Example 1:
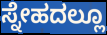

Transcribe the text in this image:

ಸ್ನೇಹದಲ್ಲೂ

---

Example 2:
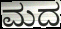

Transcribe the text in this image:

ಮದ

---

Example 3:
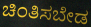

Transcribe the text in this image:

ಚಿಂತಿಸಬೇಡ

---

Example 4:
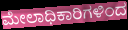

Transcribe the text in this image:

ಮೇಲಾಧಿಕಾರಿಗಳಿಂದ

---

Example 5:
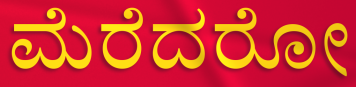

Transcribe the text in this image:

ಮೆರೆದರೋ